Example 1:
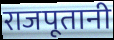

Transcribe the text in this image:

राजपूतानी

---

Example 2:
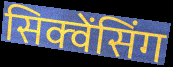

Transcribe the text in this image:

सिक्‍वेंसिंग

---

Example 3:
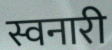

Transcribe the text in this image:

स्वनारी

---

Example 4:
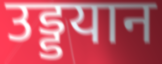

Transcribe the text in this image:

उड्डयान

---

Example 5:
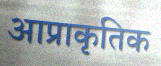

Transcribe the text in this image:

आप्राकृतिक